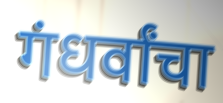
गंधर्वांचा